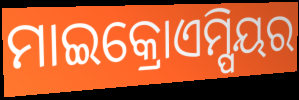
ମାଇକ୍ରୋଏମ୍ପିୟର